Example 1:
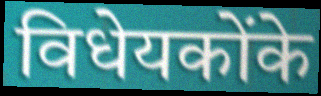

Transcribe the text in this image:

विधेयकोंके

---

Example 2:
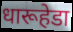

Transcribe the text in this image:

धारूहेडा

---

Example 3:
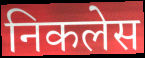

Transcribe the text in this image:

निकलेस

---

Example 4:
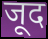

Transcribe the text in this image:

जूद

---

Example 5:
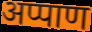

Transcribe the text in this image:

अप्पाण